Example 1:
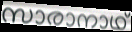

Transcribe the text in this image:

സാരാനാഥ്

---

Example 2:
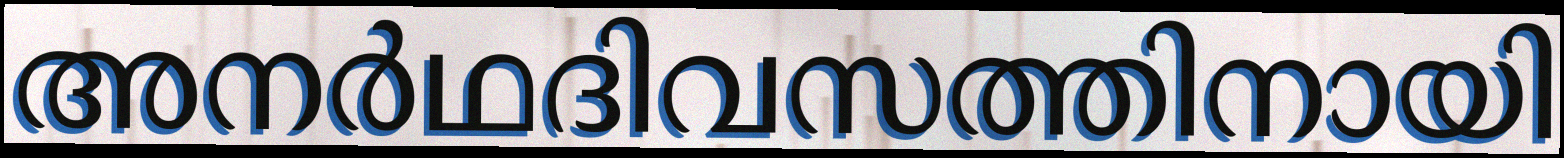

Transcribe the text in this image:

അനർഥദിവസത്തിനായി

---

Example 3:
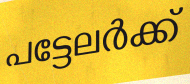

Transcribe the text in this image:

പട്ടേലർക്ക്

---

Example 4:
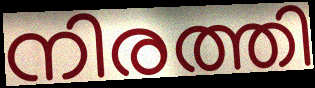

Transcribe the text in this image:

നിരത്തി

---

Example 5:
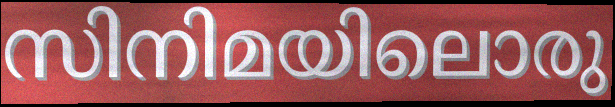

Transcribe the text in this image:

സിനിമയിലൊരു